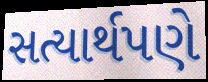
સત્યાર્થપણે